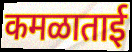
कमळाताई